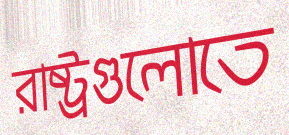
রাষ্ট্রগুলোতে